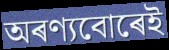
অৰণ্যবোৰেই